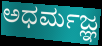
ಅಧರ್ಮಜ್ಞ